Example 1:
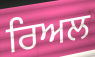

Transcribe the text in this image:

ਰਿਅਲ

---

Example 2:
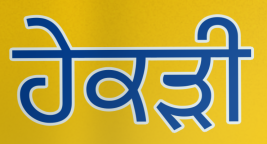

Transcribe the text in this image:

ਹੇਕੜੀ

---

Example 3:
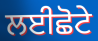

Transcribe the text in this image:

ਲਈਛੋਟੇ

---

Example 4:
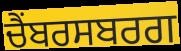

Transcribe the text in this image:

ਚੈਂਬਰਸਬਰਗ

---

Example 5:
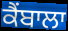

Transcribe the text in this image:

ਕੈਂਬਾਲਾ